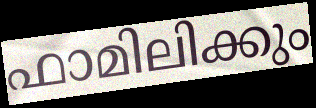
ഫാമിലിക്കും